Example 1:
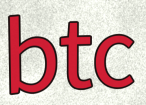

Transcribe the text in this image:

btc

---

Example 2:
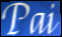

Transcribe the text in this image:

Pai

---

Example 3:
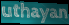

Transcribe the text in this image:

uthayan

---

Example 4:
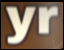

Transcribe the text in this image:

yr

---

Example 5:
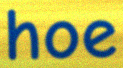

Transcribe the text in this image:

hoe